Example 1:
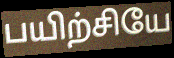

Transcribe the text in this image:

பயிற்சியே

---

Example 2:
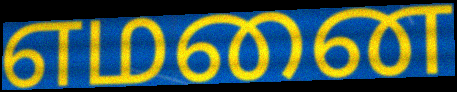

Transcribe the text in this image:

எமனை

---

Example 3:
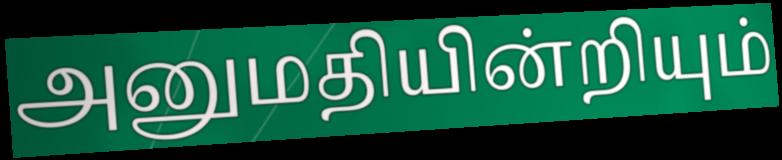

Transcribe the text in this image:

அனுமதியின்றியும்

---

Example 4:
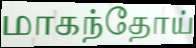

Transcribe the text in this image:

மாகந்தோய்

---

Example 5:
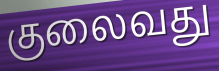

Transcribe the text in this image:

குலைவது